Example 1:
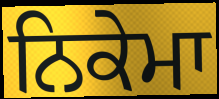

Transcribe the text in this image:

ਨਿਕੇਮਾ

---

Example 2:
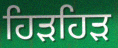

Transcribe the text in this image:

ਹਿੜਹਿੜ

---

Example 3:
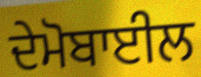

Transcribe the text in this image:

ਦੇਮੋਬਾਈਲ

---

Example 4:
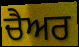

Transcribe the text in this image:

ਚੈਅਰ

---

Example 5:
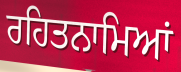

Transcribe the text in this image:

ਰਹਿਤਨਾਮਿਆਂ